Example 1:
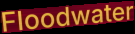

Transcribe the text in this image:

Floodwater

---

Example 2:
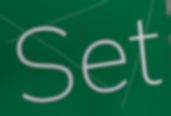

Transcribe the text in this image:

Set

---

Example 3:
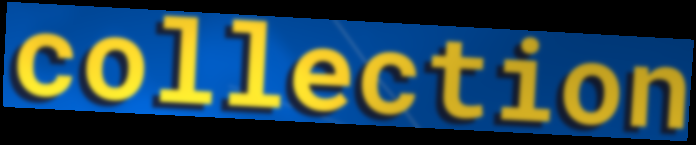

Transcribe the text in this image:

collection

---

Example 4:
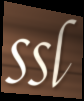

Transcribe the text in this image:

ssl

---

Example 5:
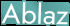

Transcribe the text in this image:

Ablaz